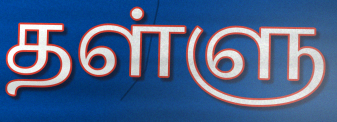
தள்ளு